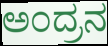
ಅಂದ್ರನ